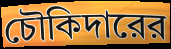
চৌকিদারের